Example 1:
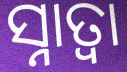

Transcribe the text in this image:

ସ୍ନାତ୍ବା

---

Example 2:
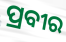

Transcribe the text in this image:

ପ୍ରବୀର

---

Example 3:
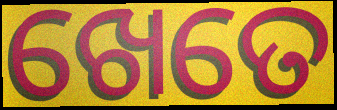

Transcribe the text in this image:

ଖେତେ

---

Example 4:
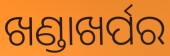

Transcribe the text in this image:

ଖଣ୍ଡାଖର୍ପର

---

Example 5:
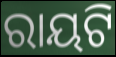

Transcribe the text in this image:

ରାୟଟି